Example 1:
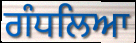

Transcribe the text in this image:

ਗੰਧਲਿਆ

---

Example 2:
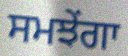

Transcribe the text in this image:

ਸਮਝੇਂਗਾ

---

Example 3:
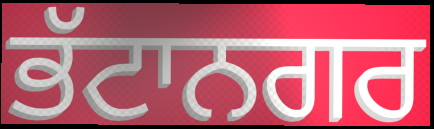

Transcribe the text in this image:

ਭੱਟਾਨਗਰ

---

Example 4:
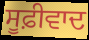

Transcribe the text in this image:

ਸੂਫ਼ੀਵਾਦ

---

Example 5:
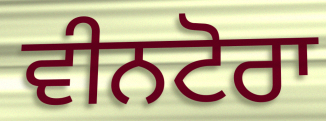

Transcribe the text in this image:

ਵੀਨਟੋਰਾ